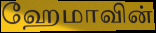
ஹேமாவின்